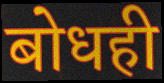
बोधही